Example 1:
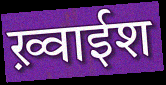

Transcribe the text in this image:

ख़्वाईश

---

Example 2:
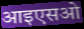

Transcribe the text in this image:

आइएसओ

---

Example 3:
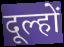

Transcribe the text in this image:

दूल्हों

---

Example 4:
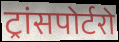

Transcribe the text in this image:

ट्रांसपोर्टरो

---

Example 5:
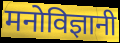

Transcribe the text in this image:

मनोविज्ञानी